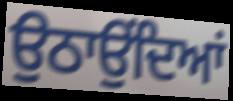
ਉਠਾਉਂਦਿਆਂ